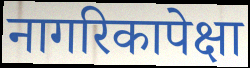
नागरिकापेक्षा